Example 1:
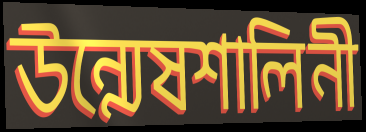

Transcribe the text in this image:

উন্মেষশালিনী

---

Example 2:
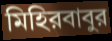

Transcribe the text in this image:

মিহিরবাবুর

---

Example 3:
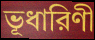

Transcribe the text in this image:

ভূধারিণী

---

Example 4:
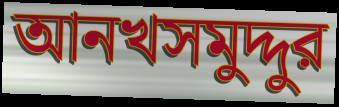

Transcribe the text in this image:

আনখসমুদ্দুর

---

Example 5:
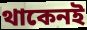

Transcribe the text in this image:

থাকেনই